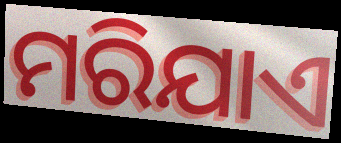
ମରିଯାଏ